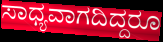
ಸಾಧ್ಯವಾಗದಿದ್ದರೂ